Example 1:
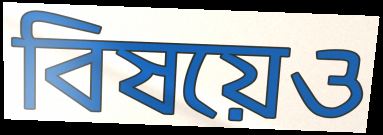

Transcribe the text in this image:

বিষয়েও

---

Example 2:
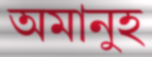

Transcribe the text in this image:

অমানুহ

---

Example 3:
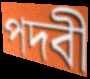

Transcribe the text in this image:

পদবী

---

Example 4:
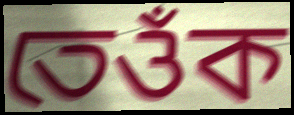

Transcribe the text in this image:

তেওঁক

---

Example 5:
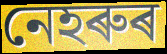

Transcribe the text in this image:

নেহৰুৰ